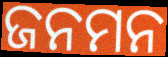
ଜନମନ